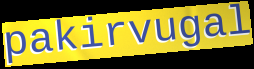
pakirvugal